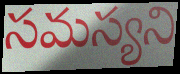
సమస్యని